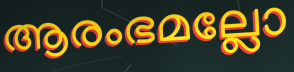
ആരംഭമല്ലോ